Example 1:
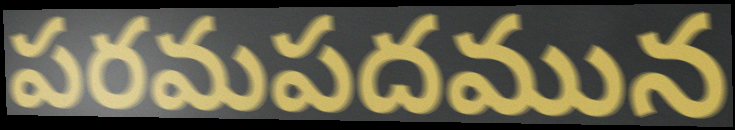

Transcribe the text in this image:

పరమపదమున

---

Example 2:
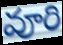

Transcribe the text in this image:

వూరి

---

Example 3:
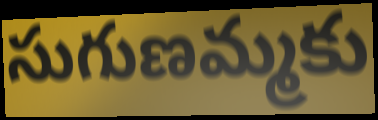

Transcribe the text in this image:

సుగుణమ్మకు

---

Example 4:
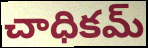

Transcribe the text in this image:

చాధికమ్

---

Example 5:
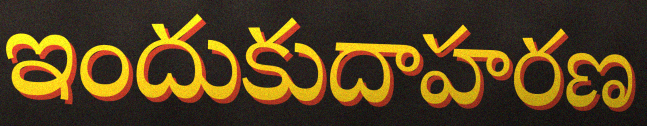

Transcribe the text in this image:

ఇందుకుదాహరణ